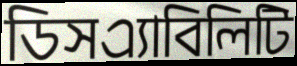
ডিসএ্যাবিলিটি